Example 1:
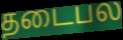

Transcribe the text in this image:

தடைபல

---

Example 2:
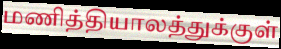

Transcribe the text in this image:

மணித்தியாலத்துக்குள்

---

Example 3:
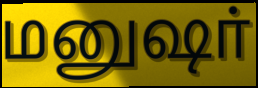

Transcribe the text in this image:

மனுஷர்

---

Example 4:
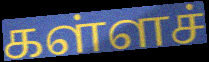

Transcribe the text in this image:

கள்ளச்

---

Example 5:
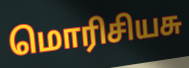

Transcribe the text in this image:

மொரிசியசு